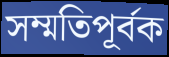
সম্মতিপূর্বক